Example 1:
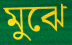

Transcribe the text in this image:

মুঝে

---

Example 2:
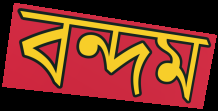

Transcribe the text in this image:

বন্দম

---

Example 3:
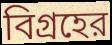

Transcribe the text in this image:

বিগ্রহের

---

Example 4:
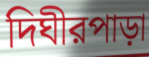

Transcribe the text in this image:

দিঘীরপাড়া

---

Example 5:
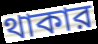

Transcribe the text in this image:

থাকার